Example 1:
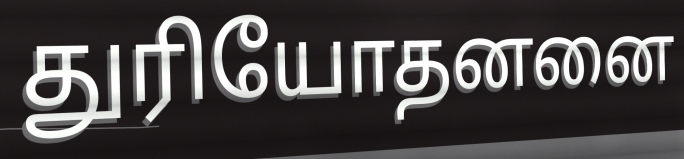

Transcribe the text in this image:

துரியோதனனை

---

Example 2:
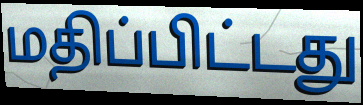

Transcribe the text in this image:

மதிப்பிட்டது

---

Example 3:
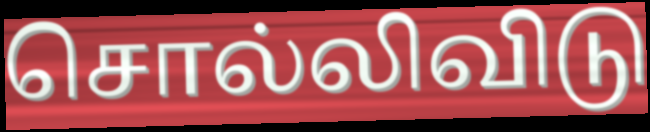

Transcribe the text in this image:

சொல்லிவிடு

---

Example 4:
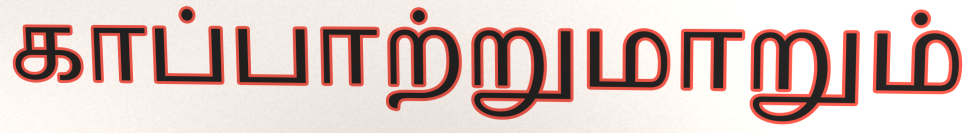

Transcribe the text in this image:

காப்பாற்றுமாறும்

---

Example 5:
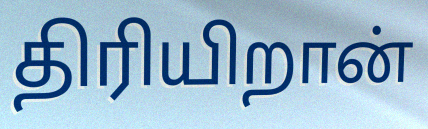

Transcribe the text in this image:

திரியிறான்